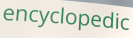
encyclopedic